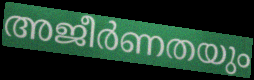
അജീർണതയും